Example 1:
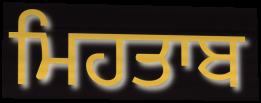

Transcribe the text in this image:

ਮਿਹਤਾਬ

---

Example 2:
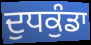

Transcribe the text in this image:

ਦੁਧਕੁੰਡਾ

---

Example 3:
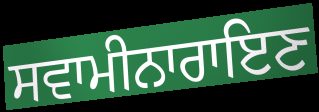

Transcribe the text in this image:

ਸਵਾਮੀਨਾਰਾਇਣ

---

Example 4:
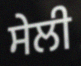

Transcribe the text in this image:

ਸੇਲੀ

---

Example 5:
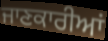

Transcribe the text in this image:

ਜਾਣਕਾਰੀਆਂ